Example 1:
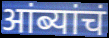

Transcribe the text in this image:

आंब्यांचं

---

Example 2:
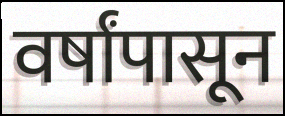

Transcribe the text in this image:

वर्षांपासून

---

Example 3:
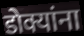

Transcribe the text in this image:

डोक्यांना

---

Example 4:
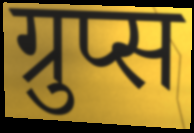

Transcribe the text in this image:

ग्रुप्स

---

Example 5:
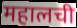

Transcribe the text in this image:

महालची